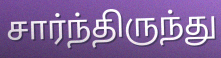
சார்ந்திருந்து